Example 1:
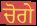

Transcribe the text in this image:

ਚੋਗੇ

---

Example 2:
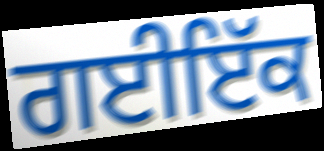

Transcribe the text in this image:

ਗਈਇੱਕ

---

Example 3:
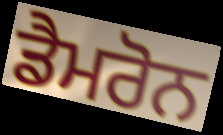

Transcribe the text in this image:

ਡੈਮਰੋਨ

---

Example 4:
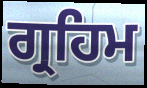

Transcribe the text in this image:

ਗ੍ਰਹਿਮ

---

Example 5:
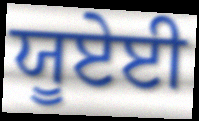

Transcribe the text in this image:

ਯੂਏਈ